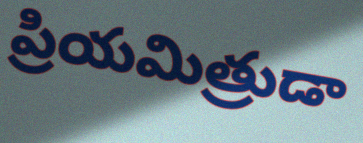
ప్రియమిత్రుడా